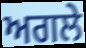
ਅਗਲੇ